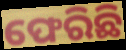
ଫେରିଛି